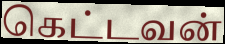
கெட்டவன்